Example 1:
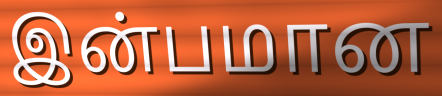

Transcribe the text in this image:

இன்பமான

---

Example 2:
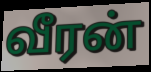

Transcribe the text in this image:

வீரன்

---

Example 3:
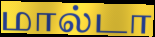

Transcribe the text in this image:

மால்டா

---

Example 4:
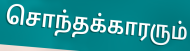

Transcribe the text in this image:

சொந்தக்காரரும்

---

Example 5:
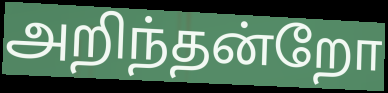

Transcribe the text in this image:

அறிந்தன்றோ